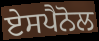
ਏਸਪੈਨੋਲ